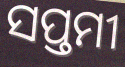
ସପ୍ତମୀ